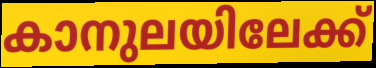
കാനുലയിലേക്ക്